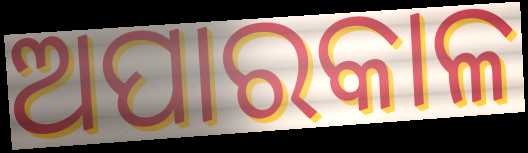
ଅପାରକାଳ